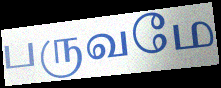
பருவமே